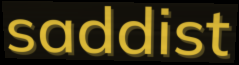
saddist